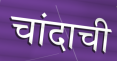
चांदाची